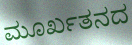
ಮೂರ್ಖತನದ